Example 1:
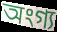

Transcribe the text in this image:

অংগ্য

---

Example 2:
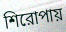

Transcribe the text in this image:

শিরোপায়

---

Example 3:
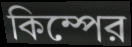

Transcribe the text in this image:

কিম্পের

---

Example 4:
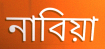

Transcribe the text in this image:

নাবিয়া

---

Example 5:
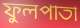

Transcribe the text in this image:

ফুলপাতা